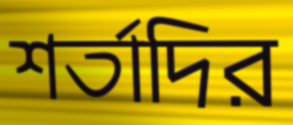
শর্তাদির